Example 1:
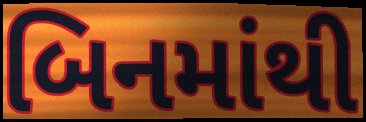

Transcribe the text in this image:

બિનમાંથી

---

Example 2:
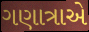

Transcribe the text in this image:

ગણાત્રાએ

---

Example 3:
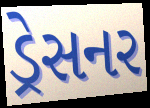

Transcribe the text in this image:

ડ્રેસનર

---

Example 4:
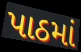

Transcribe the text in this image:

પાઠમાં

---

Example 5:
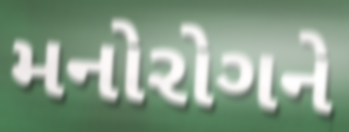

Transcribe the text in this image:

મનોરોગને